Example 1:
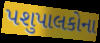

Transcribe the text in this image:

પશુપાલકોના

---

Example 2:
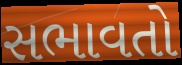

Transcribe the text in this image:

સભાવતો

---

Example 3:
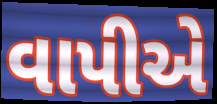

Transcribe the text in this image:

વાપીએ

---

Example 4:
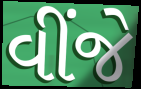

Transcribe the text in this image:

વીંજે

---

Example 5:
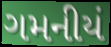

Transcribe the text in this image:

ગમનીયં